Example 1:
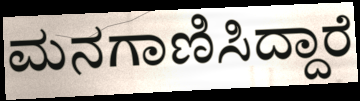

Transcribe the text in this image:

ಮನಗಾಣಿಸಿದ್ದಾರೆ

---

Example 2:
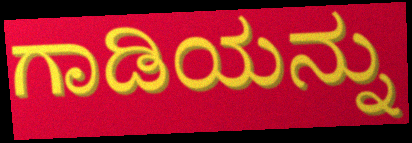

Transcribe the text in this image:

ಗಾಡಿಯನ್ನು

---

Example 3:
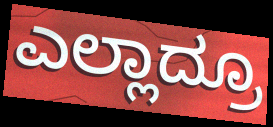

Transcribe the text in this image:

ಎಲ್ಲಾದ್ರೂ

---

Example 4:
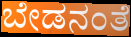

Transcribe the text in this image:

ಬೇಡನಂತೆ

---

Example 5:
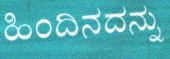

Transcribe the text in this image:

ಹಿಂದಿನದನ್ನು